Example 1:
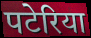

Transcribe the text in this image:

पटेरिया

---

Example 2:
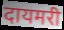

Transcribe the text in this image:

दायमरी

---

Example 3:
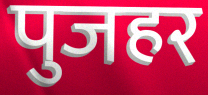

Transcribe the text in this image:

पुजहर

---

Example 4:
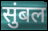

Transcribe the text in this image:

सुंबल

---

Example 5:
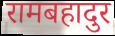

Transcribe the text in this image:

रामबहादुर